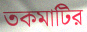
তকমাটির